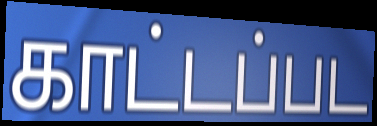
காட்டப்பட